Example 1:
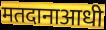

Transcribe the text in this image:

मतदानाआधी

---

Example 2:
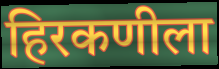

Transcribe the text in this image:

हिरकणीला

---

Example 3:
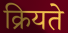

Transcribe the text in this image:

क्रियते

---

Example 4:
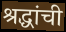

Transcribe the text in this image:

श्रद्धांची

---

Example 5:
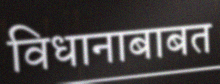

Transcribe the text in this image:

विधानाबाबत